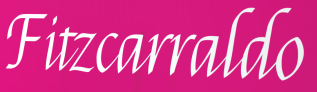
Fitzcarraldo